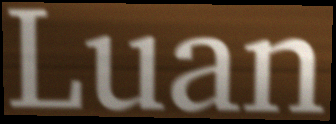
Luan